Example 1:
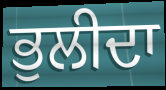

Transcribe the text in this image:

ਭੁਲੀਦਾ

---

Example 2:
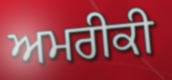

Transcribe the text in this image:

ਅਮਰੀਕੀ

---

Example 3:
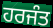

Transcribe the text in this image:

ਹਰਜੰਤ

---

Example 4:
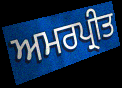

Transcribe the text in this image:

ਅਮਰਪ੍ਰੀਤ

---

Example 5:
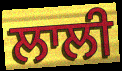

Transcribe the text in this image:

ਲਾਲੀ